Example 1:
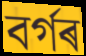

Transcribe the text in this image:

বৰ্গৰ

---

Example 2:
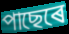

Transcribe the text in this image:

পাছেৰে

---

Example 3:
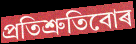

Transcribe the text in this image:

প্ৰতিশ্ৰুতিবোৰ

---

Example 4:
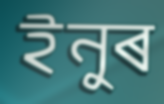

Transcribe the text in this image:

ইনুৰ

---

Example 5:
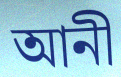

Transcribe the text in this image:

আনী